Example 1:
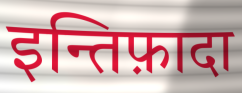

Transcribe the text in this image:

इन्तिफ़ादा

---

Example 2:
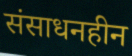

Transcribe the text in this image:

संसाधनहीन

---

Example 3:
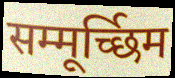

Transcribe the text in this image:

सम्मूर्च्छिम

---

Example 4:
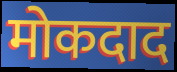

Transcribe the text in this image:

मोकदाद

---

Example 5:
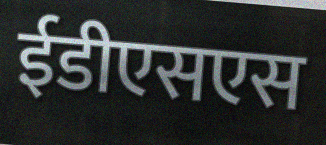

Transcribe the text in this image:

ईडीएसएस